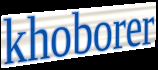
khoborer